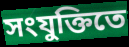
সংযুক্তিতে